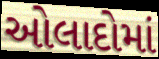
ઓલાદોમાં